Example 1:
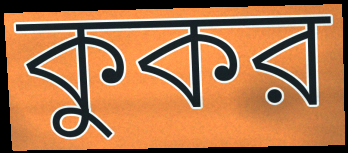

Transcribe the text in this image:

কুকর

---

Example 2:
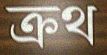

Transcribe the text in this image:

ক্রথ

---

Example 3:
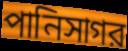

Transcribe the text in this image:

পানিসাগর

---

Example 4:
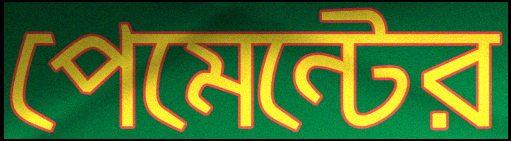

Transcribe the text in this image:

পেমেন্টের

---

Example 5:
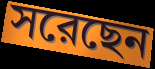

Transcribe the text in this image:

সরেছেন